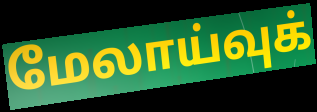
மேலாய்வுக்